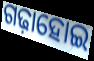
ଗଢ଼ାହୋଇ